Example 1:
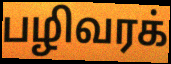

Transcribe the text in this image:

பழிவரக்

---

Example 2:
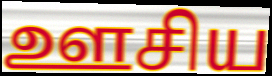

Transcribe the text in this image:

ஊசிய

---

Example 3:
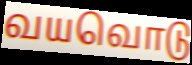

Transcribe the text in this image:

வயவொடு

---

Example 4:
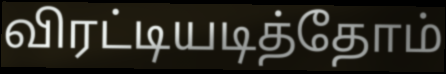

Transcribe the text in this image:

விரட்டியடித்தோம்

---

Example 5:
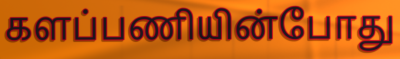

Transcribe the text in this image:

களப்பணியின்போது